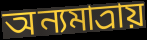
অন্যমাত্রায়